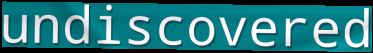
undiscovered